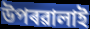
উপৰৱালাই